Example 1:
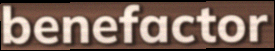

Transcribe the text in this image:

benefactor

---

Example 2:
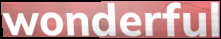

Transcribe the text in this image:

wonderful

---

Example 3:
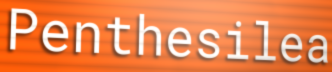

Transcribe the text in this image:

Penthesilea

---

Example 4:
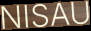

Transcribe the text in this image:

NISAU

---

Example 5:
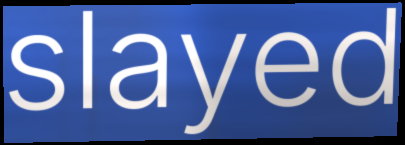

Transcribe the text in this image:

slayed